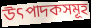
উৎপাদকসমূহ